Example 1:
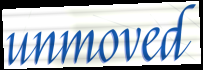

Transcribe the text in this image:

unmoved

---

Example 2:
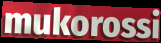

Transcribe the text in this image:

mukorossi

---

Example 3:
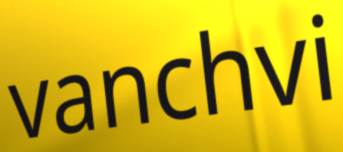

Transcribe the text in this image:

vanchvi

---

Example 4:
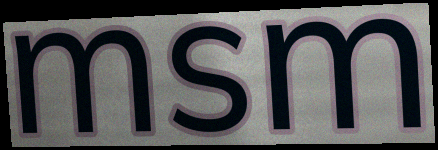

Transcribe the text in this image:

msm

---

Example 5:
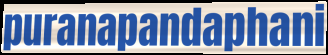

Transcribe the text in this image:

puranapandaphani